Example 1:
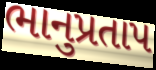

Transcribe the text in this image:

ભાનુપ્રતાપ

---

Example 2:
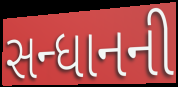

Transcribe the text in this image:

સન્ધાનની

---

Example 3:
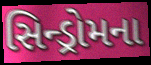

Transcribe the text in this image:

સિન્ડ્રોમના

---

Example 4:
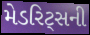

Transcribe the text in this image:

મેડરિટ્સની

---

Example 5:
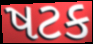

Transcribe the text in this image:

ષટક